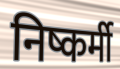
निष्कर्मी